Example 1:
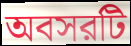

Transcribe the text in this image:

অবসরটি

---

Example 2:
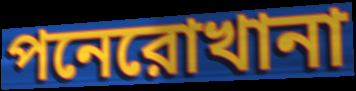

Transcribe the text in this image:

পনেরোখানা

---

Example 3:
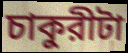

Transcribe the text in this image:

চাকুরীটা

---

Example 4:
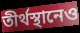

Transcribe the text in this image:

তীর্থস্থানেও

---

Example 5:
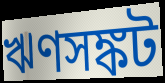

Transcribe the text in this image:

ঋণসঙ্কট